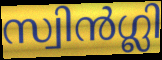
സ്വിൻഗ്ലി